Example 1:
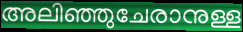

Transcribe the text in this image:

അലിഞ്ഞുചേരാനുള്ള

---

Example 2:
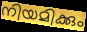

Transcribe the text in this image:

നിയമിക്കും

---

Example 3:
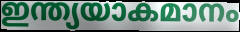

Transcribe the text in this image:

ഇന്ത്യയാകമാനം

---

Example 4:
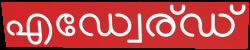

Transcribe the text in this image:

എഡ്വേര്ഡ്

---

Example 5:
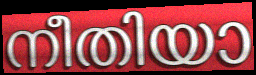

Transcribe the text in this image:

നീതിയാ